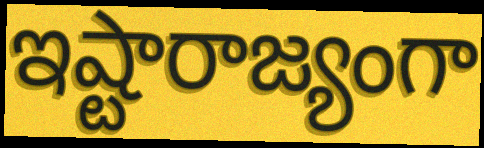
ఇష్టారాజ్యంగా